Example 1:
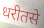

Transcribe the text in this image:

धरीतसे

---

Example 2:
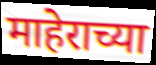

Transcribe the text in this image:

माहेराच्या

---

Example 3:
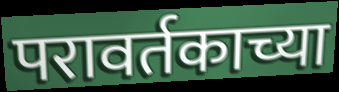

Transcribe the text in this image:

परावर्तकाच्या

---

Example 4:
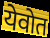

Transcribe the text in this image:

येवोत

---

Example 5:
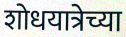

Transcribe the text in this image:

शोधयात्रेच्या